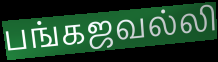
பங்கஜவல்லி